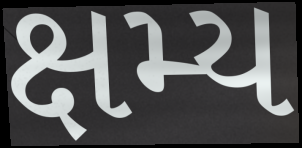
ક્ષમ્ય